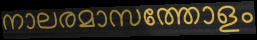
നാലരമാസത്തോളം